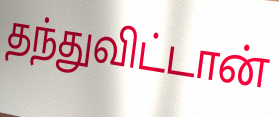
தந்துவிட்டான்